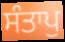
ਸੰਤਾਪੁ